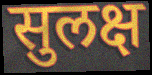
सुलक्ष